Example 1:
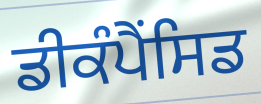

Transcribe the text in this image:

ਡੀਕੰਪੈਂਸਿਡ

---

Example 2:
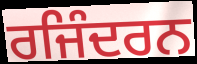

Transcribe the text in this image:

ਰਜਿੰਦਰਨ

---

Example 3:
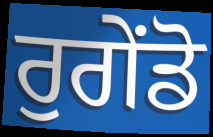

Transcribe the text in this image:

ਰੁਗੇਂਡੋ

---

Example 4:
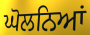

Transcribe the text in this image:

ਘੋਲਨਿਆਂ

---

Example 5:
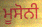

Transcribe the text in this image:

ਮੂਸੋਨੀ